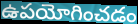
ఉపయోగించడం